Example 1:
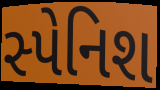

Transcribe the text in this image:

સ્પેનિશ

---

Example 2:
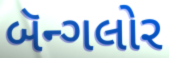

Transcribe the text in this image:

બૅન્ગલોર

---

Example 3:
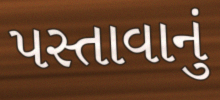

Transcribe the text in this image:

પસ્તાવાનું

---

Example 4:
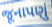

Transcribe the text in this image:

જૂનાપણું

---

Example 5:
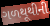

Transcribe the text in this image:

ગળથૂથીની